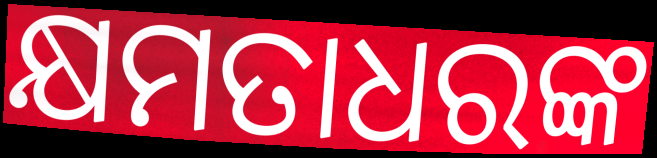
କ୍ଷମତାଧରଙ୍କ